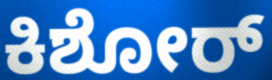
ಕಿಶೋರ್